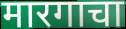
मारगाचा